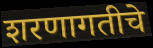
शरणागतीचे